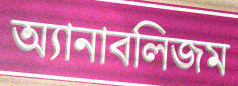
অ্যানাবলিজম